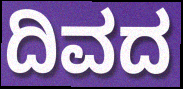
ದಿವದ